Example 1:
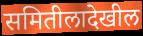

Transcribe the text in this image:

समितीलादेखील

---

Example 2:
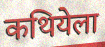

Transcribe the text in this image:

कथियेला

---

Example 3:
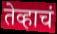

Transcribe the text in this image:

तेव्हाचं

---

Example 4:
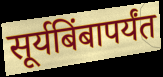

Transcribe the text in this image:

सूर्यबिंबापर्यंत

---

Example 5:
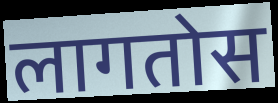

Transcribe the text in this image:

लागतोस